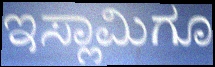
ಇಸ್ಲಾಮಿಗೂ